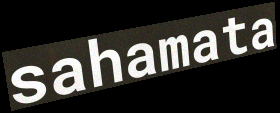
sahamata